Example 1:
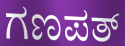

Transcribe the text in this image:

ಗಣಪತ್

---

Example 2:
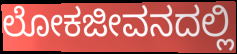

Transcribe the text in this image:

ಲೋಕಜೀವನದಲ್ಲಿ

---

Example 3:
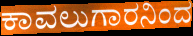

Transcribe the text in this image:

ಕಾವಲುಗಾರನಿಂದ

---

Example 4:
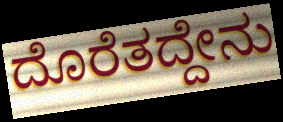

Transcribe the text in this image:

ದೊರೆತದ್ದೇನು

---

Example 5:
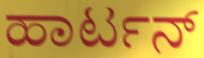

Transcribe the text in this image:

ಹಾರ್ಟನ್